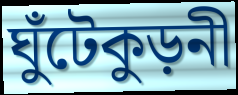
ঘুঁটেকুড়নী